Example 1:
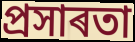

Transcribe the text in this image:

প্ৰসাৰতা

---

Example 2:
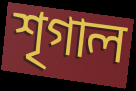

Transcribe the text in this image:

শৃগাল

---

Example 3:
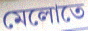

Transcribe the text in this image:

মেলোতে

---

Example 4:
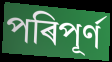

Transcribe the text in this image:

পৰিপূৰ্ণ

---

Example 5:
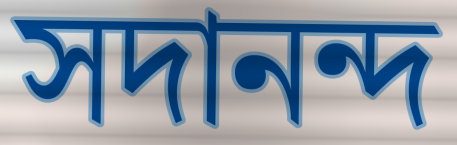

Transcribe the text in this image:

সদানন্দ